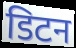
डिटन